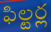
ఫిల్టర్ల